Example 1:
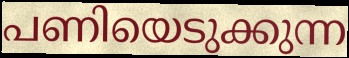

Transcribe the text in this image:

പണിയെടുക്കുന്ന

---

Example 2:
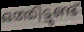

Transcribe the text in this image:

ഒത്തിട്ടുണ്ട്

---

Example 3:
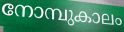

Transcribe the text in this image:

നോമ്പുകാലം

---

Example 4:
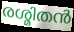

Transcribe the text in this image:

രശ്മിതൻ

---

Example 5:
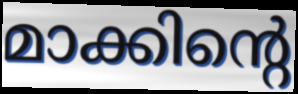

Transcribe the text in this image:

മാക്കിന്റെ